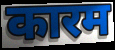
कारम